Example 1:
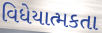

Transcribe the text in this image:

વિધેયાત્મકતા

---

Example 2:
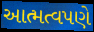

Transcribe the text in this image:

આત્મત્વપણે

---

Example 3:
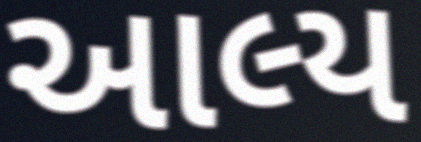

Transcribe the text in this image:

આલ્ય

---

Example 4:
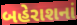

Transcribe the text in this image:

બહેરાશનાં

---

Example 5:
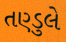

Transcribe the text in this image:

તણ્ડુલે